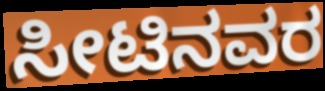
ಸೀಟಿನವರ